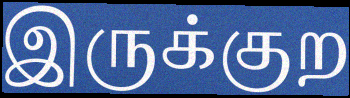
இருக்குற